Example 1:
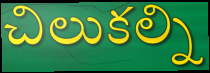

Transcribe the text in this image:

చిలుకల్ని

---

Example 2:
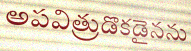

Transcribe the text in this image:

అపవిత్రుడొకడైనను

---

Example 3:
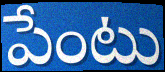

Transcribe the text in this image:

పేంటు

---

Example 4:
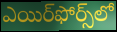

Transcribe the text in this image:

ఎయిర్‌ఫోర్స్‌లో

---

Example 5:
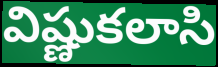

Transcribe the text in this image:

విష్ణుకలాసి